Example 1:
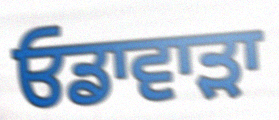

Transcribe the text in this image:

ਓਡਾਵਾੜਾ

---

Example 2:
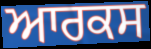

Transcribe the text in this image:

ਆਰਕਸ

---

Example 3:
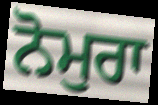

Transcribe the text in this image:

ਨੋਮੁਰਾ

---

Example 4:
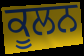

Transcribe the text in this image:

ਕੂਲਨ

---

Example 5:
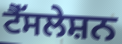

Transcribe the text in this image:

ਟੈੱਸਲੇਸ਼ਨ